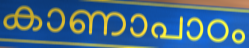
കാണാപാഠം